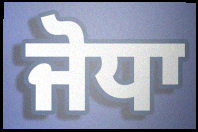
ਜੋਧਾ